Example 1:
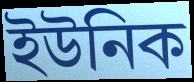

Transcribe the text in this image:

ইউনিক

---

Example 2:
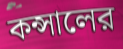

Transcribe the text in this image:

কন্সালের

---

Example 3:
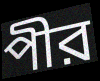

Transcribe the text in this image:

পীর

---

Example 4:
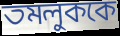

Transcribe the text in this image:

তমলুককে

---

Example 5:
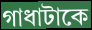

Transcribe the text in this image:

গাধাটাকে